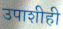
उपाशीही